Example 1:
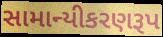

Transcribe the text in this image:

સામાન્યીકરણરૂપ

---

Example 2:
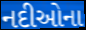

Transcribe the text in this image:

નદીઓના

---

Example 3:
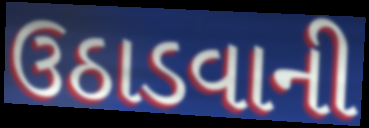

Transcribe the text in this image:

ઉઠાડવાની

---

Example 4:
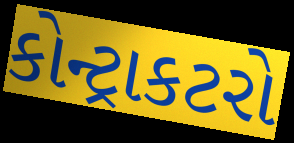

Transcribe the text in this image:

કોન્ટ્રાકટરો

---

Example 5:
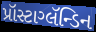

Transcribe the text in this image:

પ્રૉસ્ટાગ્લૅન્ડિન